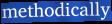
methodically